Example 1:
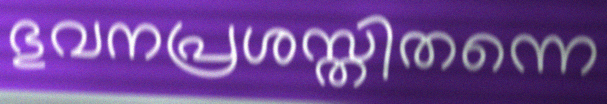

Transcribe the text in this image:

ഭുവനപ്രശസ്തിതന്നെ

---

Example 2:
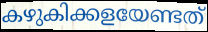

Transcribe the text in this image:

കഴുകിക്കളയേണ്ടത്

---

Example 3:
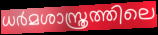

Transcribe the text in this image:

ധർമശാസ്ത്രത്തിലെ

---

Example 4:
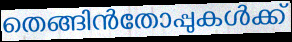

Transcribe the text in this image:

തെങ്ങിൻതോപ്പുകൾക്ക്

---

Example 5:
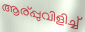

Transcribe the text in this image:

ആര്പ്പുവിളിച്ച്